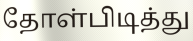
தோள்பிடித்து